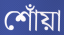
শোঁয়া